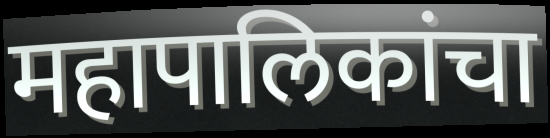
महापालिकांचा